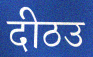
दीठउ